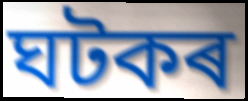
ঘটকৰ